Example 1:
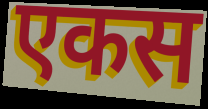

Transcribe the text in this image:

एकस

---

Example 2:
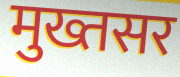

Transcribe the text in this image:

मुख्तसर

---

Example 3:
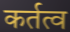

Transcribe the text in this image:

कर्तत्व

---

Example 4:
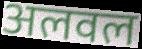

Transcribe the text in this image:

अलवल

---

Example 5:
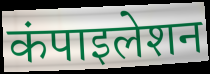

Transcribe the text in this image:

कंपाइलेशन